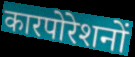
कारपोरेशनों